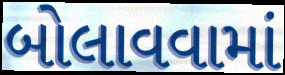
બોલાવવામાં